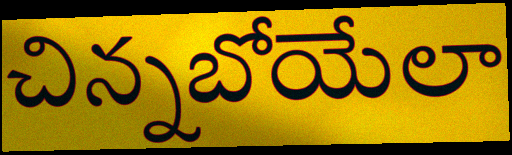
చిన్నబోయేలా